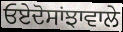
ਓਏਦੋਸਾਂਝਾਵਾਲੇ